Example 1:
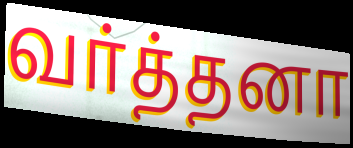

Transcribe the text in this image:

வர்த்தனா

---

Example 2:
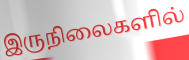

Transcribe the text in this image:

இருநிலைகளில்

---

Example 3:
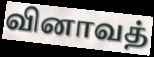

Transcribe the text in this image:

வினாவத்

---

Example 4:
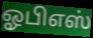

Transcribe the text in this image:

ஓபிஎஸ்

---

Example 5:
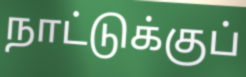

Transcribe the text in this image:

நாட்டுக்குப்